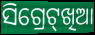
ସିଗ୍ରେଟ୍‌ଖିଆ